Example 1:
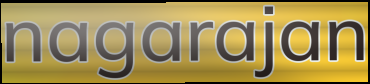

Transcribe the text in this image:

nagarajan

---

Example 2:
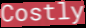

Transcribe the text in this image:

Costly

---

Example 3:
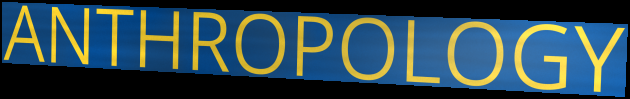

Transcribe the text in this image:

ANTHROPOLOGY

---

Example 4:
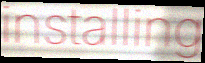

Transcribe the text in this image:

installing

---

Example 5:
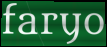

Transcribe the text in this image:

faryo